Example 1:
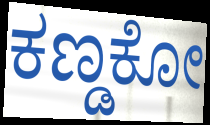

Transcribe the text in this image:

ಕಣ್ಡಕೋ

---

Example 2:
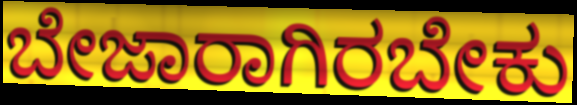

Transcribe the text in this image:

ಬೇಜಾರಾಗಿರಬೇಕು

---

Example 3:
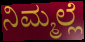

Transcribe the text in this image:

ನಿಮ್ಮಲ್ಲೆ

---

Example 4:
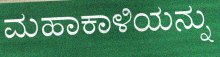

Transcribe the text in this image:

ಮಹಾಕಾಳಿಯನ್ನು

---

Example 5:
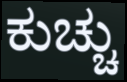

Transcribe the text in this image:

ಕುಚ್ಚು